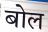
बोल